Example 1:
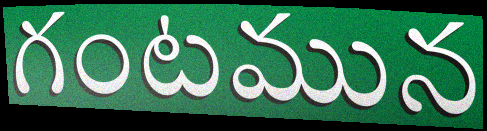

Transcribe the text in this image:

గంటమున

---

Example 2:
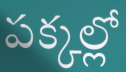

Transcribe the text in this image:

పక్కల్లో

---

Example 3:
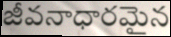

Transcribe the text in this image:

జీవనాధారమైన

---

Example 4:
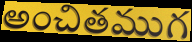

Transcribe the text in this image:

అంచితముగ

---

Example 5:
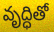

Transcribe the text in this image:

వృద్ధితో